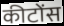
कीटोंस